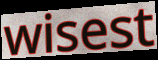
wisest